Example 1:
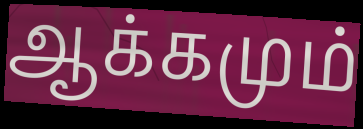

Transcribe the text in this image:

ஆக்கமும்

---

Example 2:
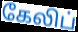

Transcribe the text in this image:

கேலிப்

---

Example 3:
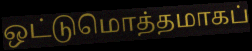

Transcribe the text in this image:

ஒட்டுமொத்தமாகப்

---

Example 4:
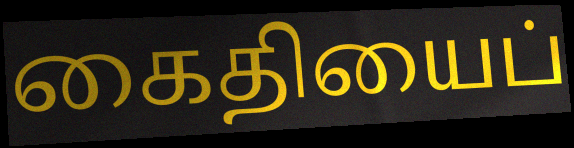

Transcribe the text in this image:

கைதியைப்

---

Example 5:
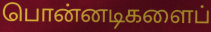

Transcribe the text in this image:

பொன்னடிகளைப்